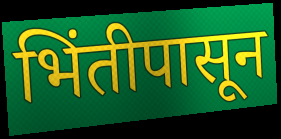
भिंतीपासून